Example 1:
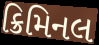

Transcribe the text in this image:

ક્રિમિનલ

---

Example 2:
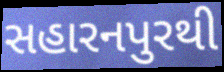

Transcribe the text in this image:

સહારનપુરથી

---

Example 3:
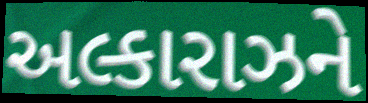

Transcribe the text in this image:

અલ્કારાઝને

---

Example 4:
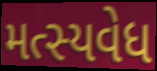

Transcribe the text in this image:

મત્સ્યવેધ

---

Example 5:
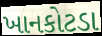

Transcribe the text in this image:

ખાનકોટડા